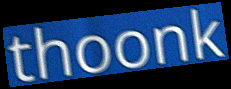
thoonk